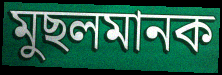
মুছলমানক